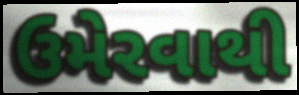
ઉમેરવાથી